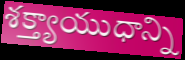
శక్త్యాయుధాన్ని